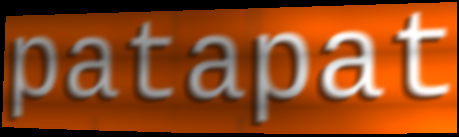
patapat